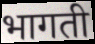
भागती